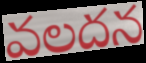
వలదన